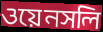
ওয়েনসলি